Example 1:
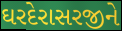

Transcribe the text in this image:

ઘરદેરાસરજીને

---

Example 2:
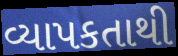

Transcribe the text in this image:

વ્યાપકતાથી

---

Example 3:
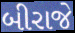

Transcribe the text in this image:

બીરાજે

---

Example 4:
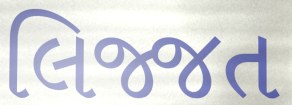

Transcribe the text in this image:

લિજ્જત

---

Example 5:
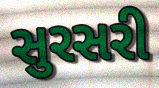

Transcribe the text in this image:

સુરસરી